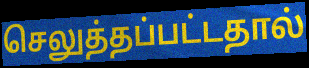
செலுத்தப்பட்டதால்